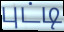
புட்டி